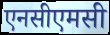
एनसीएमसी